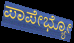
ಪಾಪೇಭ್ಯೋ